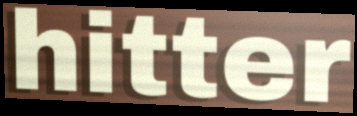
hitter